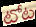
టోట